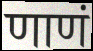
णाणं